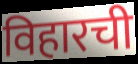
विहारची